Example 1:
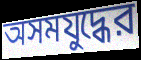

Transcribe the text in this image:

অসমযুদ্ধের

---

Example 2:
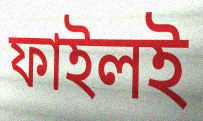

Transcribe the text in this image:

ফাইলই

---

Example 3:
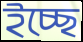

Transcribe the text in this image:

ইচ্ছে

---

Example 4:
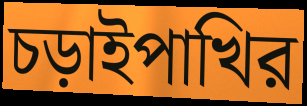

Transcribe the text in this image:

চড়াইপাখির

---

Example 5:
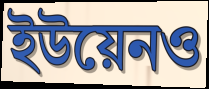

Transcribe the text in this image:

ইউয়েনও